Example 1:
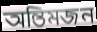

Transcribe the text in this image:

অন্তিমজন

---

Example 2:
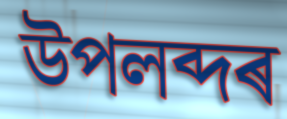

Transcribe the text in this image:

উপলব্দৰ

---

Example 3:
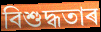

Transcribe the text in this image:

বিশুদ্ধতাৰ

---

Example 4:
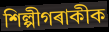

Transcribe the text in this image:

শিল্পীগৰাকীক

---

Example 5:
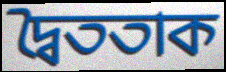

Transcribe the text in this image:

দ্বৈততাক